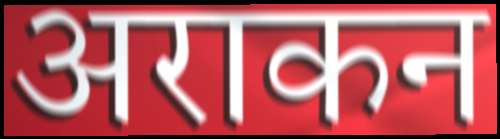
अराकन